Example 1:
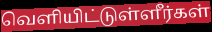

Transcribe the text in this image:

வெளியிட்டுள்ளீர்கள்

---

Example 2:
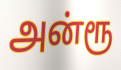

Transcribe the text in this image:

அன்ரூ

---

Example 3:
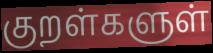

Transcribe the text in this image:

குறள்களுள்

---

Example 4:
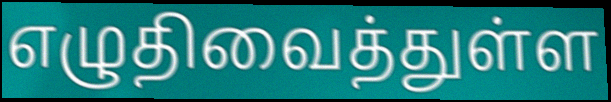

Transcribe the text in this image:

எழுதிவைத்துள்ள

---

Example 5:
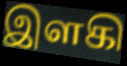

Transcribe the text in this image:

இளகி